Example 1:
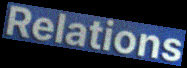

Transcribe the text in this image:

Relations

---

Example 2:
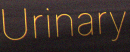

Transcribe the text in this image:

Urinary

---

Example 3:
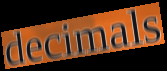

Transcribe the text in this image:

decimals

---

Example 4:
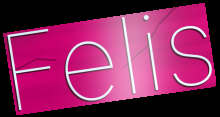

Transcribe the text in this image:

Felis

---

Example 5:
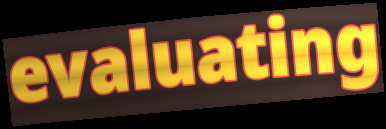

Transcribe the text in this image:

evaluating